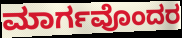
ಮಾರ್ಗವೊಂದರ